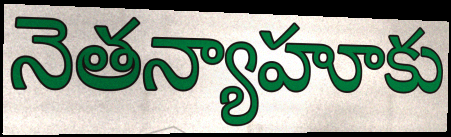
నెతన్యాహూకు